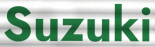
Suzuki